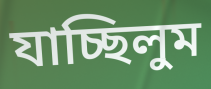
যাচ্ছিলুম